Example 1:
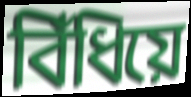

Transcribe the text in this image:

বিঁধিয়ে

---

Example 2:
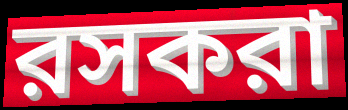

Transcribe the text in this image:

রসকরা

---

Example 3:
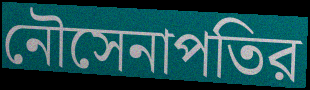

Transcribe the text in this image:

নৌসেনাপতির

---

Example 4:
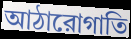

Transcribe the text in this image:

আঠারোগাতি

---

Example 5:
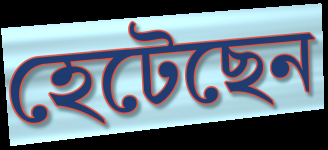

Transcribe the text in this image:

হেটেছেন